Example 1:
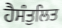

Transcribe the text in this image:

ਹੈਸੰਤੁਲਿਤ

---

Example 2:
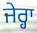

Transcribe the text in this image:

ਜੇਰ੍ਹਾ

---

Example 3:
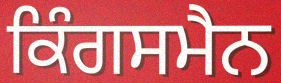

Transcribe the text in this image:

ਕਿੰਗਸਮੈਨ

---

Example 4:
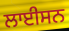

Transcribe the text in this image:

ਲਾਈਸਨ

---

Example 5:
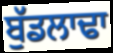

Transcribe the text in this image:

ਬੁੱਡਲਾਢਾ